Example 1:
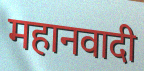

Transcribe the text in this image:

महानवादी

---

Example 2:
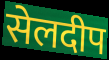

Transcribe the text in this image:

सेलदीप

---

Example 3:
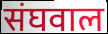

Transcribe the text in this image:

संघवाल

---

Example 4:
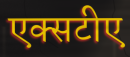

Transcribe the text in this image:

एक्सटीए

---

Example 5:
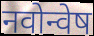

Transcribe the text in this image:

नवोन्वेष